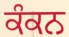
ਕੰਕਨ